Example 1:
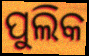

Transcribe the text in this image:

ପୁଲିକ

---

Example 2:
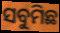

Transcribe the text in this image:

ସବୁମିଛ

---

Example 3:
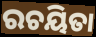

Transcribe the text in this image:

ରଚୟିତା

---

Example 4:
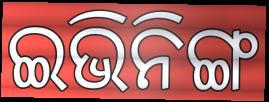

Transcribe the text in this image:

ଇଭିନିଙ୍ଗ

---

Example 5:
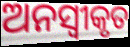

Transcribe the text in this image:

ଅନସ୍ବୀକୃତ